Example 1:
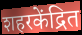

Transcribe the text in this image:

शहरकेंद्रित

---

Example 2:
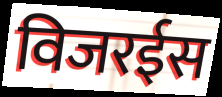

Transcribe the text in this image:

विजरईस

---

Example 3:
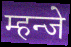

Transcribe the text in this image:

म्हन्जे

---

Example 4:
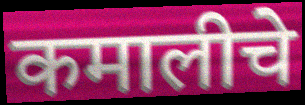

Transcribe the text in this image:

कमालीचे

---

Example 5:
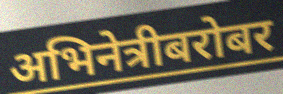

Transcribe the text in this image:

अभिनेत्रीबरोबर